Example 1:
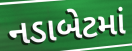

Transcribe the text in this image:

નડાબેટમાં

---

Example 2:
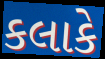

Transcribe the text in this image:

કલાકે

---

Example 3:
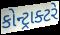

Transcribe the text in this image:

કોન્ટ્રાક્ટરે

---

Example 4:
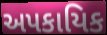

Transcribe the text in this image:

અપકાયિક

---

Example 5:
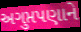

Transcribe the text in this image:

અગુપ્તપણાને